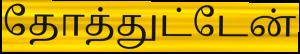
தோத்துட்டேன்